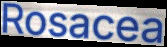
Rosacea